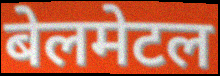
बेलमेटल